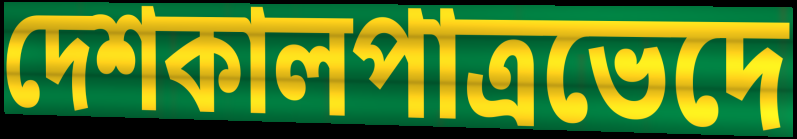
দেশকালপাত্রভেদে